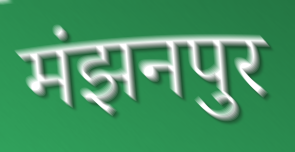
मंझनपुर